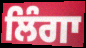
ਲਿੰਗਾ